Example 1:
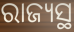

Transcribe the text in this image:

ରାଜ୍ୟସ୍ଥ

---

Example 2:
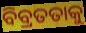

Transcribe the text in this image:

ବିବ୍ରତତାକୁ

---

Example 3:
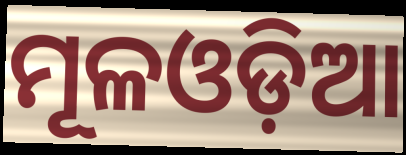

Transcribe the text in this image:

ମୂଳଓଡ଼ିଆ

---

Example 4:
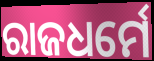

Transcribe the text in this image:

ରାଜଧର୍ମେ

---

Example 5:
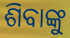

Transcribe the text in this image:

ଶିବାଙ୍କୁ